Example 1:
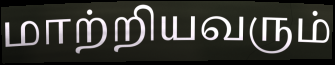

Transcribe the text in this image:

மாற்றியவரும்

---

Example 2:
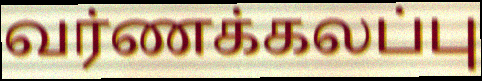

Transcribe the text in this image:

வர்ணக்கலப்பு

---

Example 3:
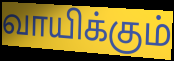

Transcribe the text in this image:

வாயிக்கும்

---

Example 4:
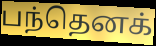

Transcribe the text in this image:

பந்தெனக்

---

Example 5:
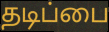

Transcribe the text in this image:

தடிப்பை